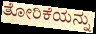
ತೋರಿಕೆಯನ್ನು